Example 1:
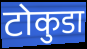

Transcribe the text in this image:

टोकुडा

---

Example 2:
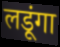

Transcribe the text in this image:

लडूंगा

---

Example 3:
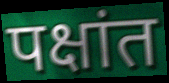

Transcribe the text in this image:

पक्षांत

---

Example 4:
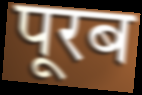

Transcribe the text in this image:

पूरब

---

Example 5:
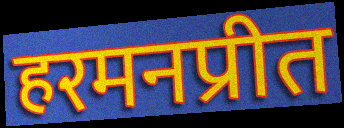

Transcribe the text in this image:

हरमनप्रीत